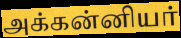
அக்கன்னியர்